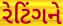
રેટિંગને